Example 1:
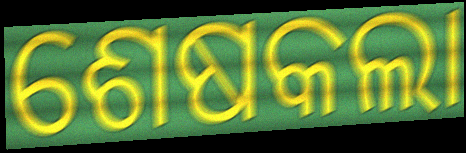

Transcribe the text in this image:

ଶେଷକଲା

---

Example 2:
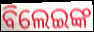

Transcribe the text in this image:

ବିଲେଇଙ୍କ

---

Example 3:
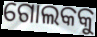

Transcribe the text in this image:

ଗୋଲକକୁ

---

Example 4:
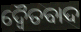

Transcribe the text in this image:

ଦ୍ୱୈତବାଦ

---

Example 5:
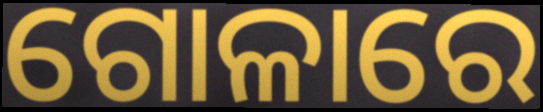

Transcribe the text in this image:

ଗୋଳାରେ